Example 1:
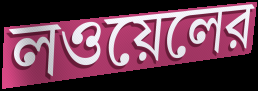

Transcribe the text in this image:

লওয়েলের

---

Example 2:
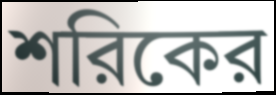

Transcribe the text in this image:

শরিকের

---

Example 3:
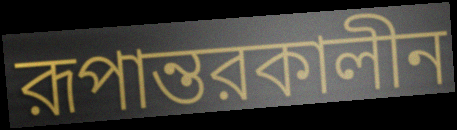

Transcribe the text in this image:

রূপান্তরকালীন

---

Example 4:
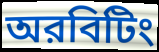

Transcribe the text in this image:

অরবিটিং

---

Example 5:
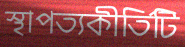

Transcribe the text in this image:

স্থাপত্যকীর্তিটি